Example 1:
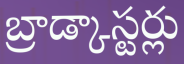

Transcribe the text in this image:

బ్రాడ్కాస్టర్లు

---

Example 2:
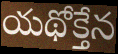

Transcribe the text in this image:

యథోక్తేన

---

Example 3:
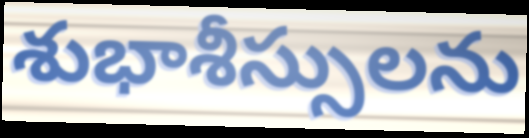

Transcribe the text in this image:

శుభాశీస్సులను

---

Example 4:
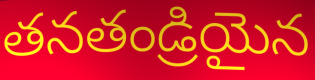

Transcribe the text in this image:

తనతండ్రియైన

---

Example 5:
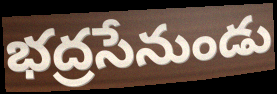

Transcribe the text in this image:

భద్రసేనుండు